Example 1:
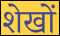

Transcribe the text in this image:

शेखों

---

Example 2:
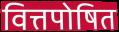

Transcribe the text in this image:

वित्तपोषित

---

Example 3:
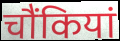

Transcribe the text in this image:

चौंकियां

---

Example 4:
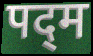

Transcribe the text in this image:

पद्‌म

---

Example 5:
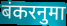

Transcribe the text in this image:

बंकरनुमा